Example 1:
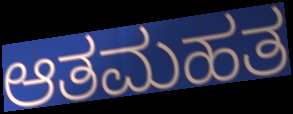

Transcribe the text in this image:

ಆತಮಹತ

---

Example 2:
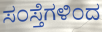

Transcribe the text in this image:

ಸಂಸ್ತೆಗಳಿಂದ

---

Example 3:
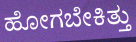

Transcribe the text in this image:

ಹೋಗಬೇಕಿತ್ತು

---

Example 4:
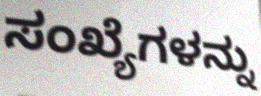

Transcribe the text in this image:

ಸಂಖ್ಯೆಗಳನ್ನು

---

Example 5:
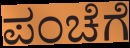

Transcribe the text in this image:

ಪಂಚೆಗೆ